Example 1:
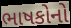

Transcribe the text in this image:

ભાષકોનો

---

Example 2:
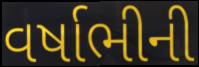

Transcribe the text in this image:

વર્ષાભીની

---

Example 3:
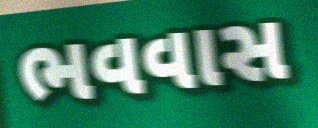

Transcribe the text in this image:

ભવવાસ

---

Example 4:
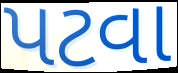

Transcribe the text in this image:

પટવા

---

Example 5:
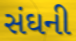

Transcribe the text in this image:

સંઘની